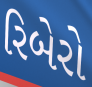
રિબેરો